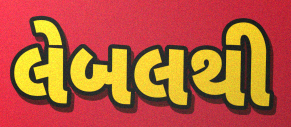
લેબલથી